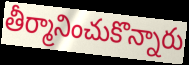
తీర్మానించుకొన్నారు